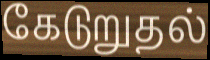
கேடுறுதல்